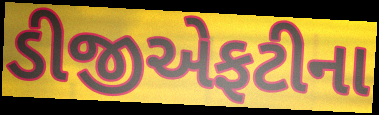
ડીજીએફટીના